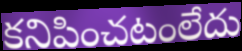
కనిపించటంలేదు